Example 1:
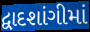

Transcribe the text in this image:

દ્વાદશાંગીમાં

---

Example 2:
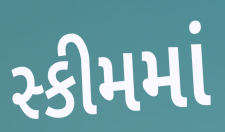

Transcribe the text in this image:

સ્કીમમાં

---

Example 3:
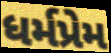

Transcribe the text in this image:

ધર્મપ્રેમ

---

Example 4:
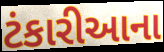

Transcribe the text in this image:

ટંકારીઆના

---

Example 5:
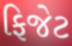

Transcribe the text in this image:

ફિજેટ